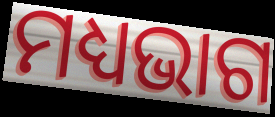
ମଧ୍ୟଭାଗ